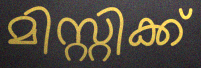
മിസ്റ്റിക്ക്